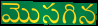
మొసగిన